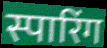
स्पारिंग